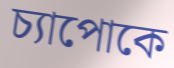
চ্যাপোকে